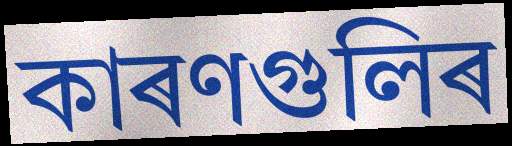
কাৰণগুলিৰ